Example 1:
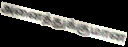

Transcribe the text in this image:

அனைத்துக்குமான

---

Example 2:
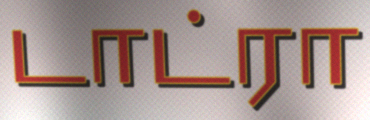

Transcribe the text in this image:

டாட்ரா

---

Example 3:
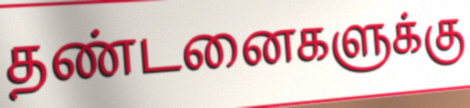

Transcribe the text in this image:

தண்டனைகளுக்கு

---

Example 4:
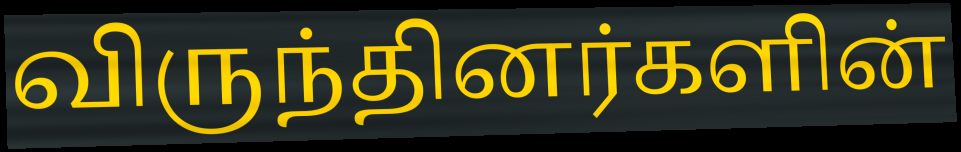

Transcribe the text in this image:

விருந்தினர்களின்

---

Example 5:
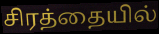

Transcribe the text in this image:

சிரத்தையில்